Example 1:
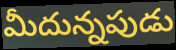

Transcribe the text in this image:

మీదున్నపుడు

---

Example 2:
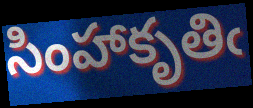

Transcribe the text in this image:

సింహాకృతిఁ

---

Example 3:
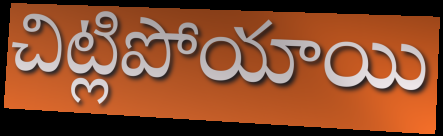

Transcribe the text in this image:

చిట్లిపోయాయి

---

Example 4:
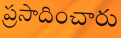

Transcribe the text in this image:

ప్రసాదించారు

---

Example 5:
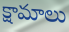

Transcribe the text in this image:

క్షామాలు